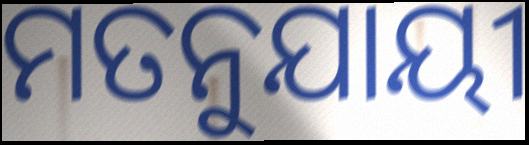
ମତନୁଯାୟୀ